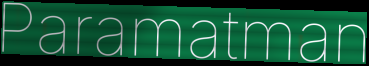
Paramatman